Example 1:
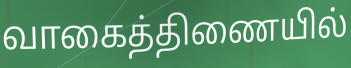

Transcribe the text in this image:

வாகைத்திணையில்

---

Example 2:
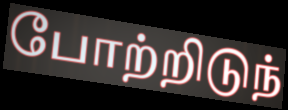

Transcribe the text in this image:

போற்றிடுந்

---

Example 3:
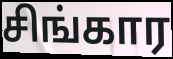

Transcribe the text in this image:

சிங்கார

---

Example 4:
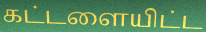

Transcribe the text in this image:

கட்டளையிட்ட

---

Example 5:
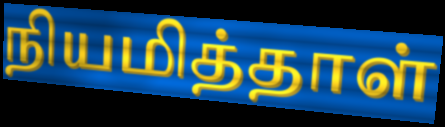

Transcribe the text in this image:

நியமித்தாள்